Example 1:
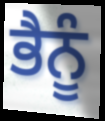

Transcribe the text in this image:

ਭੈਨੂੰ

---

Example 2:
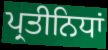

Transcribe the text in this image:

ਪ੍ਰਤੀਨਿਧਾਂ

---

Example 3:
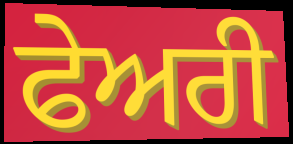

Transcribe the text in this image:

ਫੇਅਰੀ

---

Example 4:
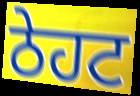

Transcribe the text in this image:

ਠੇਹਟ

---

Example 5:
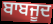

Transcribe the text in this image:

ਬਾਬਜੂਦ